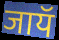
जायॅ